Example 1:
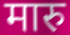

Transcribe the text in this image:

मारु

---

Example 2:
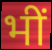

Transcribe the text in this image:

भीं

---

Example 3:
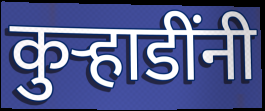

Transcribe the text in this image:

कुर्‍हाडींनी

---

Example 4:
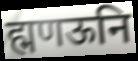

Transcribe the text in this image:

ह्मणऊनि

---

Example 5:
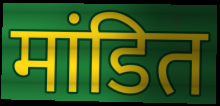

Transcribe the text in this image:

मांडित